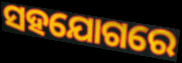
ସହଯୋଗରେ